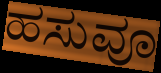
ಹಸುವೂ